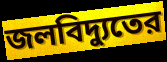
জলবিদ্যুতের